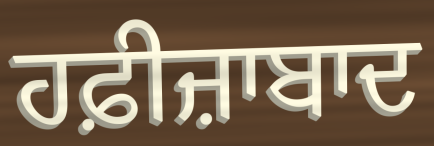
ਹਫ਼ੀਜ਼ਾਬਾਦ